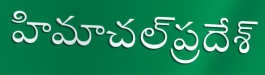
హిమాచల్‌ప్రదేశ్